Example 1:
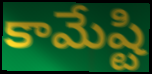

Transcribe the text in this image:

కామేష్టి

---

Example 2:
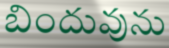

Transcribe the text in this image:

బిందువును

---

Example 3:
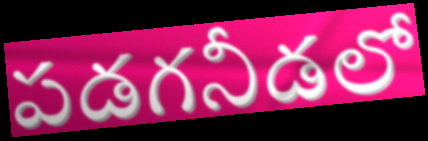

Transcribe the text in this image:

పడగనీడలో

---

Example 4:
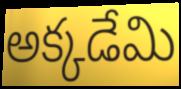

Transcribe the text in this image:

అక్కడేమి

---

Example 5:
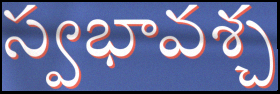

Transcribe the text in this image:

స్వభావశ్చ